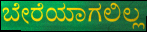
ಬೇರೆಯಾಗಲಿಲ್ಲ